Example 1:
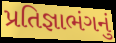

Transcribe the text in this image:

પ્રતિજ્ઞાભંગનું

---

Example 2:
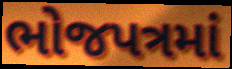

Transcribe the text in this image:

ભોજપત્રમાં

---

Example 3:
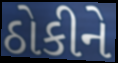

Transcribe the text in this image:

ઠોકીને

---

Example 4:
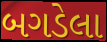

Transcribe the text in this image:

બગડેલા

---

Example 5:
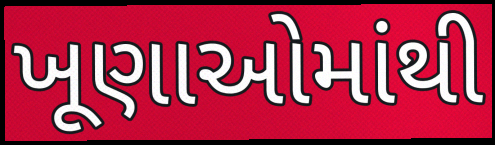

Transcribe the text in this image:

ખૂણાઓમાંથી